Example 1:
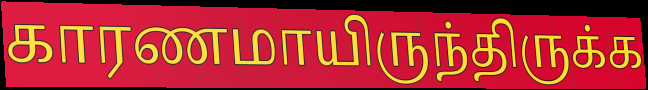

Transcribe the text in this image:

காரணமாயிருந்திருக்க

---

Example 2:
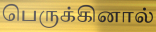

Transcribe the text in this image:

பெருக்கினால்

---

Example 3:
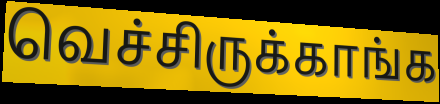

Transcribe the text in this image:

வெச்சிருக்காங்க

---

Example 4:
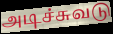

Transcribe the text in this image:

அடிச்சுவடு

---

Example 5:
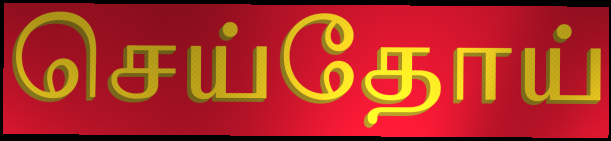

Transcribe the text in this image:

செய்தோய்